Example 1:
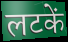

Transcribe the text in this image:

लटकें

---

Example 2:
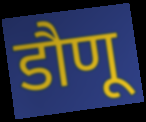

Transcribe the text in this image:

डौणू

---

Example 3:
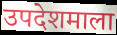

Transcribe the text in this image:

उपदेशमाला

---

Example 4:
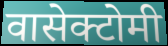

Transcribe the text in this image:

वासेक्टोमी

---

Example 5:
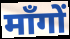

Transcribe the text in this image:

माँगों